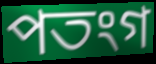
পতংগ